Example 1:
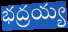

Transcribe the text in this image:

భద్రయ్య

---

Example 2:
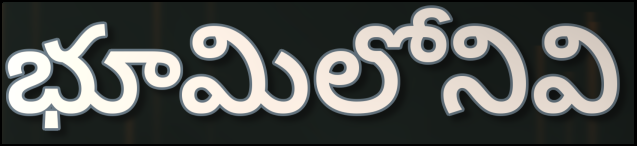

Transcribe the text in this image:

భూమిలోనివి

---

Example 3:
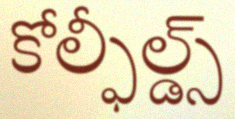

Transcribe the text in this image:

కోల్ఫీల్డ్స్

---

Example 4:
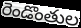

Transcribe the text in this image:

రెండొంతుల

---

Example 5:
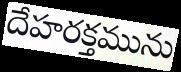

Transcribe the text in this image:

దేహరక్తమును